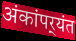
अंकांपर्यंत